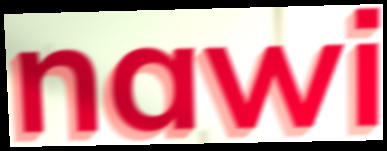
nawi